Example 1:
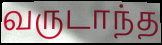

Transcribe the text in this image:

வருடாந்த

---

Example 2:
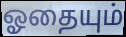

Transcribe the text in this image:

ஓதையும்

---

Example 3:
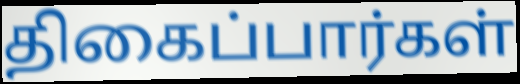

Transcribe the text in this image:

திகைப்பார்கள்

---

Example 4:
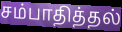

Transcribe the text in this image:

சம்பாதித்தல்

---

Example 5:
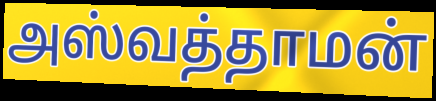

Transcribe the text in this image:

அஸ்வத்தாமன்